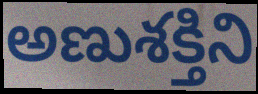
అణుశక్తిని